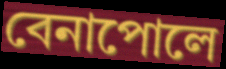
বেনাপোলে